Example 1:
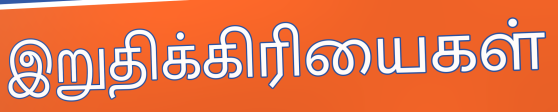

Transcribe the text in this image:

இறுதிக்கிரியைகள்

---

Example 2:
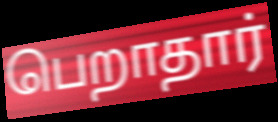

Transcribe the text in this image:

பெறாதார்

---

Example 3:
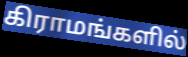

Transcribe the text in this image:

கிராமங்களில்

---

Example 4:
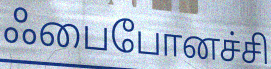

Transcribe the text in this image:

ஃபைபோனச்சி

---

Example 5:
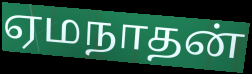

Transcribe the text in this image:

ஏமநாதன்